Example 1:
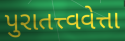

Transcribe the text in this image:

પુરાતત્ત્વવેત્તા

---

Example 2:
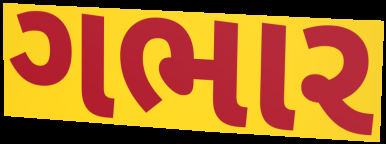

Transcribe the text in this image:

ગભાર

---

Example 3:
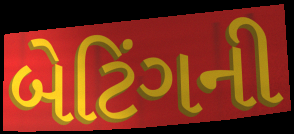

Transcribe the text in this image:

બેટિંગની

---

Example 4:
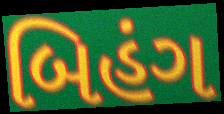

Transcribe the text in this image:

બિહંગ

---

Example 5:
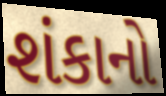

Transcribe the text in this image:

શંકાનો